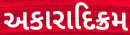
અકારાદિક્રમ